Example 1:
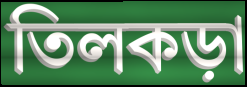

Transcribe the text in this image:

তিলকড়া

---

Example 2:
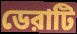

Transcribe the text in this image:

ডেরাটি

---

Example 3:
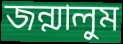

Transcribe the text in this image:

জন্মালুম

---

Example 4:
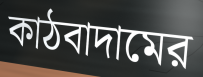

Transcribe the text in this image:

কাঠবাদামের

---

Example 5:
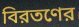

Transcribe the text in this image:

বিরতণের